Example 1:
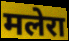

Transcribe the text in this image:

मलेरा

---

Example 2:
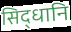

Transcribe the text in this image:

सिद्धानि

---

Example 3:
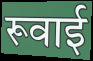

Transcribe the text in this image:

रूवाई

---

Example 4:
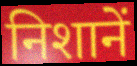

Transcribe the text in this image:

निशानें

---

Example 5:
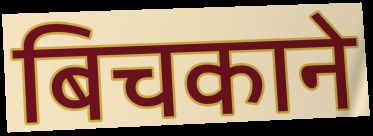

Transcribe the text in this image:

बिचकाने